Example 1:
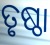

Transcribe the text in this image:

ତୃଷ୍ଠା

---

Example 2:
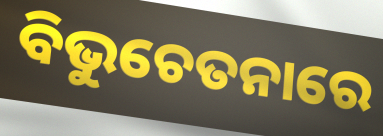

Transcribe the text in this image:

ବିଭୁଚେତନାରେ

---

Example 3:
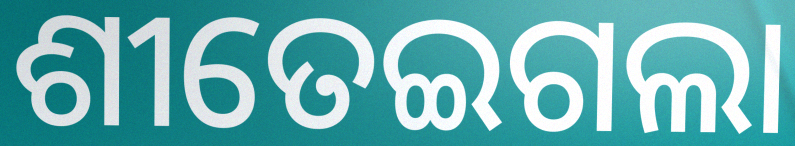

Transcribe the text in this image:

ଶୀତେଇଗଲା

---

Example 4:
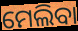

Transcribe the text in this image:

ମେଲିବା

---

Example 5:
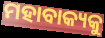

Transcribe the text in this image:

ମହାବାକ୍ୟକୁ